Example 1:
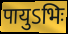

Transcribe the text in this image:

पायुऽभिः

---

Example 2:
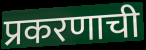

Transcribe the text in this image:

प्रकरणाची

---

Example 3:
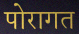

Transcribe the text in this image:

पोरागत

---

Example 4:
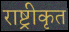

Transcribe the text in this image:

राष्ट्रीकृत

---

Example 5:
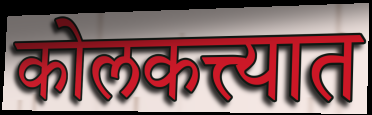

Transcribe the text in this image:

कोलकत्त्यात